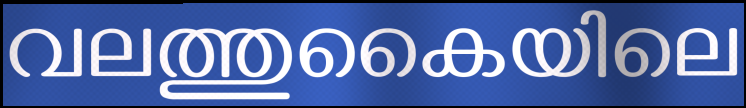
വലത്തുകൈയിലെ